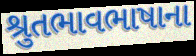
શ્રુતભાવભાષાના